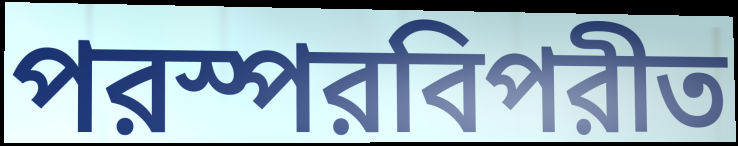
পরস্পরবিপরীত